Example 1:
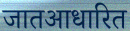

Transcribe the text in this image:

जातआधारित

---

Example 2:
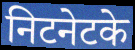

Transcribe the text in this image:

निटनेटके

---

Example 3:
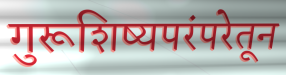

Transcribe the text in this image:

गुरूशिष्यपरंपरेतून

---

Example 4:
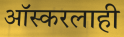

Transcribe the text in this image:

ऑस्करलाही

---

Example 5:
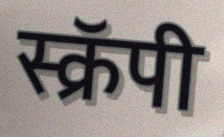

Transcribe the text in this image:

स्क्रॅपी